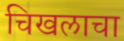
चिखलाचा